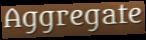
Aggregate